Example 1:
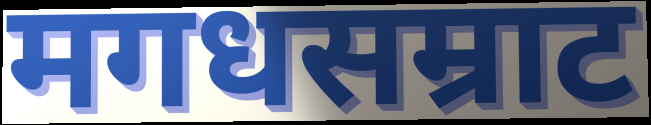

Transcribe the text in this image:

मगधसम्राट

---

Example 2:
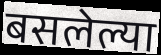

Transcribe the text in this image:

बसलेल्या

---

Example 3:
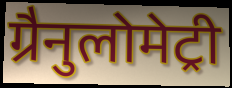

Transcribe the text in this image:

ग्रैनुलोमेट्री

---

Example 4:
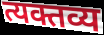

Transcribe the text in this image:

त्यक्तव्य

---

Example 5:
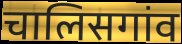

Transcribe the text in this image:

चालिसगांव